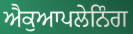
ਐਕੁਆਪਲੇਨਿੰਗ